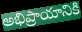
అభిప్రాయానికి